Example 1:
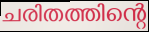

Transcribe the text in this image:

ചരിതത്തിന്റെ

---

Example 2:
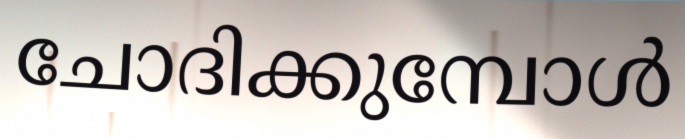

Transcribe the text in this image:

ചോദിക്കുമ്പോൾ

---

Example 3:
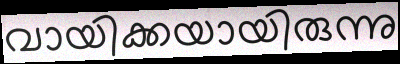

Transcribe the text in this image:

വായിക്കയായിരുന്നു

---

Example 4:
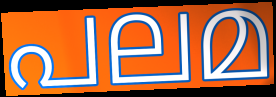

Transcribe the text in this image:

പലമ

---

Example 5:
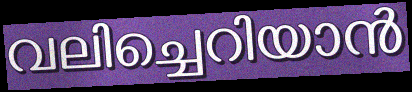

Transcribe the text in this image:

വലിച്ചെറിയാൻ